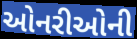
ઓનરીઓની